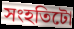
সংহতিটো